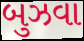
બુઝવા